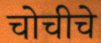
चोचीचे